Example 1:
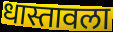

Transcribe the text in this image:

धास्तावला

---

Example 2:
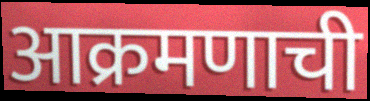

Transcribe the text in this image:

आक्रमणाची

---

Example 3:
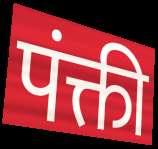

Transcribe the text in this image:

पंक्ती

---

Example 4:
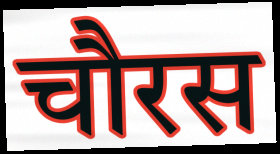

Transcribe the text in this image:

चौरस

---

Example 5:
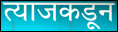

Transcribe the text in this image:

त्याजकडून